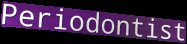
Periodontist